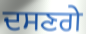
ਦਸਣਗੇ